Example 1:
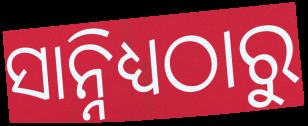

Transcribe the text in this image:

ସାନ୍ନିଧ୍ୟଠାରୁ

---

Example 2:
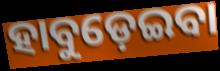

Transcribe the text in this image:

ହାବୁଡ଼େଇବା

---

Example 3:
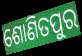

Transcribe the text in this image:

ଶୋଣିତପୁର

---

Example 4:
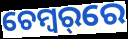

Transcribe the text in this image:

ଚେମ୍ବର୍‌ରେ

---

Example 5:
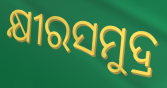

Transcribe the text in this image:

କ୍ଷୀରସମୁଦ୍ର